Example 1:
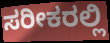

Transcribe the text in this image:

ಸರೀಕರಲ್ಲಿ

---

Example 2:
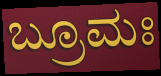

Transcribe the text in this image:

ಬ್ರೂಮಃ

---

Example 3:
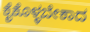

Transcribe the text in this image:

ಕೈಕೊಳ್ಳಬೇಕಾದ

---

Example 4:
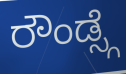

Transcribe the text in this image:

ರೌಂಡ್ಸ್ಗೆ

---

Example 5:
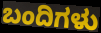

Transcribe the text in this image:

ಬಂದಿಗಳು